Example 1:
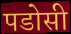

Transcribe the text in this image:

पडोसी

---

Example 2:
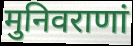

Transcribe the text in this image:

मुनिवराणां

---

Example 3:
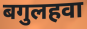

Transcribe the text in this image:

बगुलहवा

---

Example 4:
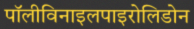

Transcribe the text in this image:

पॉलीविनाइलपाइरोलिडोन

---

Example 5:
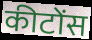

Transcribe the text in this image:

कीटोंस